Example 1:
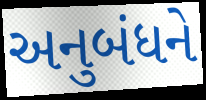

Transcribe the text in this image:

અનુબંધને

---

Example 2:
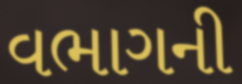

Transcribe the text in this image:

વભાગની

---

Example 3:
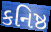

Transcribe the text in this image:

કનિષ્ઠ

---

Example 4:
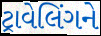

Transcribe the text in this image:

ટ્રાવેલિંગને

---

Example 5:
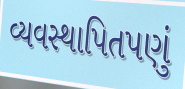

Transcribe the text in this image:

વ્યવસ્થાપિતપણું